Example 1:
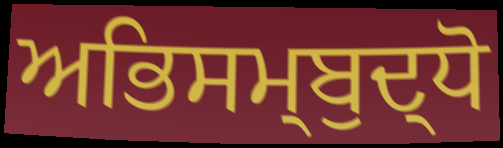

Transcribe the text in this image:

ਅਭਿਸਮ੍ਬੁਦ੍ਧੋ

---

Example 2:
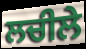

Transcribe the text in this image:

ਲਚੀਲੇ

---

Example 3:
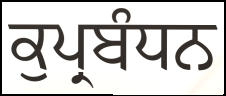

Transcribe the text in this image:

ਕੁਪ੍ਰਬੰਧਨ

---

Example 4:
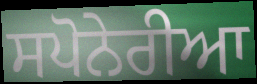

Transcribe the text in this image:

ਸਪੋਨੇਰੀਆ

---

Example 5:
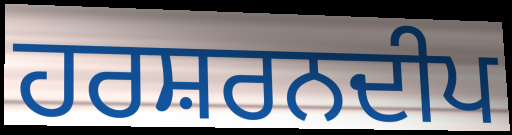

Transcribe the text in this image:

ਹਰਸ਼ਰਨਦੀਪ